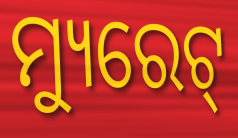
ମ୍ୟୁରେଟ୍